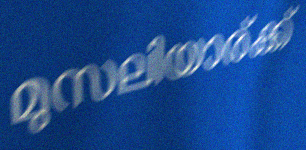
മുസലിയാര്ക്ക്